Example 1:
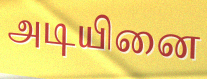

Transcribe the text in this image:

அடியினை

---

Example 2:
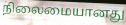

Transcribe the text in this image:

நிலைமையானது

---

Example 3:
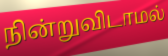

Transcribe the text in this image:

நின்றுவிடாமல்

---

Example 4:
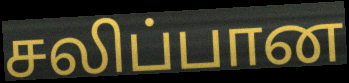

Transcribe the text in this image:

சலிப்பான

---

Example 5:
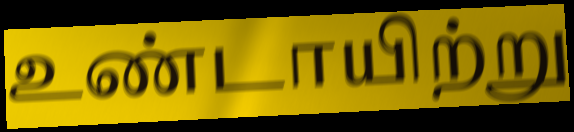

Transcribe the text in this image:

உண்டாயிற்று